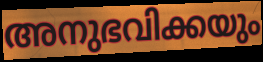
അനുഭവിക്കയും